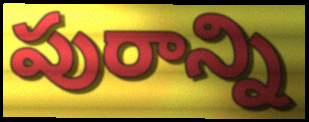
పురాన్ని